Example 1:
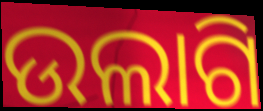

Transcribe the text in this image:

ଉଲାଗି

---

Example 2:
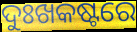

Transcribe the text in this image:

ଦୁଃଖକଷ୍ଟରେ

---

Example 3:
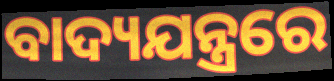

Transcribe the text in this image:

ବାଦ୍ୟଯନ୍ତ୍ରରେ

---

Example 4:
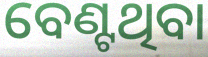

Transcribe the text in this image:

ବେଣ୍ଟଥିବା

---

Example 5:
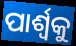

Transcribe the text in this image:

ପାର୍ଶ୍ଵକୁ